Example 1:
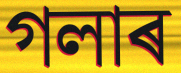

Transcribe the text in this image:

গলাৰ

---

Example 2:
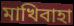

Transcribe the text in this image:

মাখিবাহা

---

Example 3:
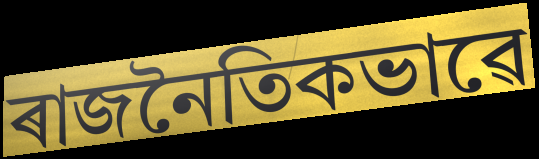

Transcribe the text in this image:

ৰাজনৈতিকভাৱে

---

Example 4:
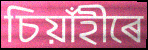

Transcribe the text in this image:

চিয়াঁহীৰে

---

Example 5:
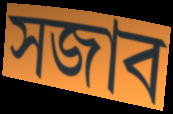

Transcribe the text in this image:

সজাব